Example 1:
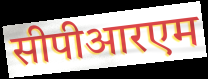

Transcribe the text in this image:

सीपीआरएम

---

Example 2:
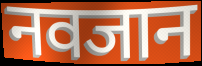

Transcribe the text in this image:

नवजान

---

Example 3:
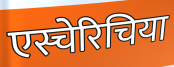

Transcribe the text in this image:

एस्चेरिचिया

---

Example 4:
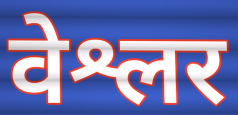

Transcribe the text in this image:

वेश्लर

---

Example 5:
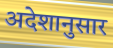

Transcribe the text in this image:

अदेशानुसार